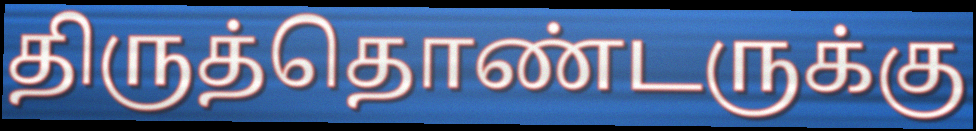
திருத்தொண்டருக்கு